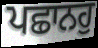
ਪਛਾਨਹੁ